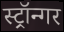
स्ट्रॉन्गर